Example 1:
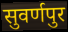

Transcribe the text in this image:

सुवर्णपुर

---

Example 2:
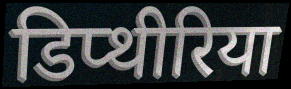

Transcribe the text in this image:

डिप्थीरिया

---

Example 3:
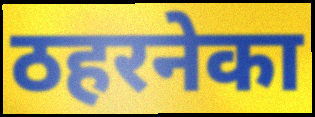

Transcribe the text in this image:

ठहरनेका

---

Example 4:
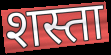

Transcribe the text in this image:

शस्ता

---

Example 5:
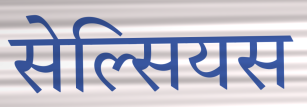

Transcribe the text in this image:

सेल्सियस